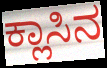
ಕ್ಲಾಸಿನ